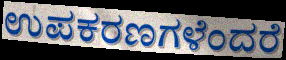
ಉಪಕರಣಗಳೆಂದರೆ